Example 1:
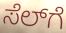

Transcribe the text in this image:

ಸೆಲ್‍ಗೆ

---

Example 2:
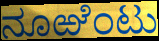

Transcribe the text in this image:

ನೂಱೆಂಟು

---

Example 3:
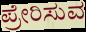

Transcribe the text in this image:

ಪ್ರೇರಿಸುವ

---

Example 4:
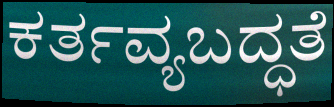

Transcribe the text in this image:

ಕರ್ತವ್ಯಬದ್ಧತೆ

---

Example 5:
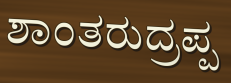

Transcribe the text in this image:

ಶಾಂತರುದ್ರಪ್ಪ